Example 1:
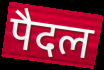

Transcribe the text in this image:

पैदल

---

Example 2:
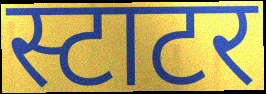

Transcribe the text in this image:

स्टाटर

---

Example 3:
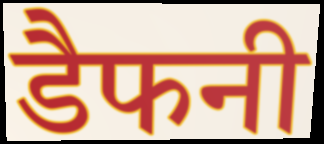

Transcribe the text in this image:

डैफनी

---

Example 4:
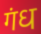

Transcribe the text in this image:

गंध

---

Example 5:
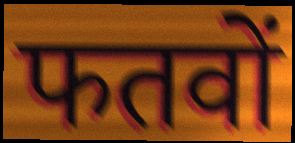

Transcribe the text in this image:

फतवों